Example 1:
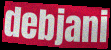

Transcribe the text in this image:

debjani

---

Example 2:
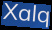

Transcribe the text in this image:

Xalq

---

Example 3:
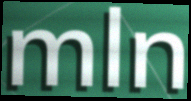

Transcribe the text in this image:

mln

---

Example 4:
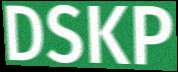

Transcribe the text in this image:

DSKP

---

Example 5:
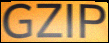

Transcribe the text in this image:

GZIP